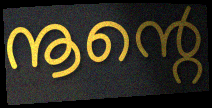
നൂന്റെ